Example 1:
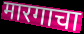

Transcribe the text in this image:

मारगाचा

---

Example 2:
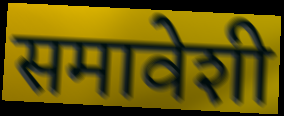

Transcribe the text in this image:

समावेशी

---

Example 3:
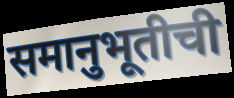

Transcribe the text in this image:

समानुभूतीची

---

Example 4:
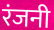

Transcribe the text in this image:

रंजनी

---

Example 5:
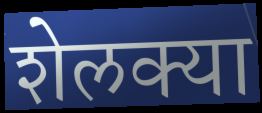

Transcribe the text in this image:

शेलक्या